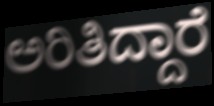
ಅರಿತಿದ್ದಾರೆ